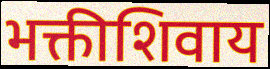
भक्तीशिवाय